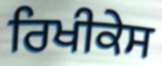
ਰਿਖੀਕੇਸ